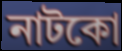
নাটকো